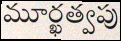
మూర్ఖత్వపు